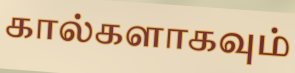
கால்களாகவும்